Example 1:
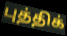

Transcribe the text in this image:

புத்திக்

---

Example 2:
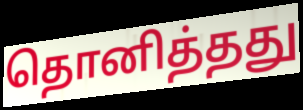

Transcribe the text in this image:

தொனித்தது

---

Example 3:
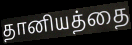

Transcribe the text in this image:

தானியத்தை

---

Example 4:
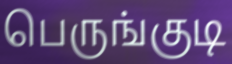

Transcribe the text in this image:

பெருங்குடி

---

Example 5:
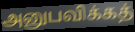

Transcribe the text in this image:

அனுபவிக்கத்